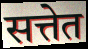
सत्तेत